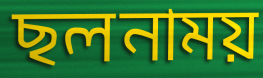
ছলনাময়